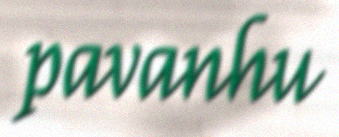
pavanhu